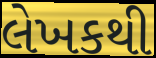
લેખકથી